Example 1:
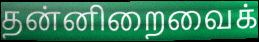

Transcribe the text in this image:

தன்னிறைவைக்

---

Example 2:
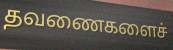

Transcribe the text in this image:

தவணைகளைச்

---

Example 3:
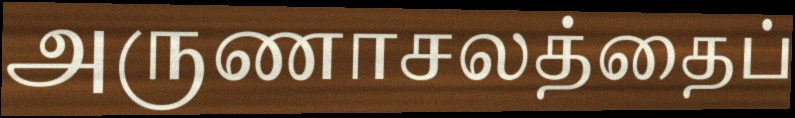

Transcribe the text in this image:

அருணாசலத்தைப்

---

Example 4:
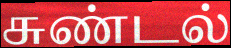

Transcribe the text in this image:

சுண்டல்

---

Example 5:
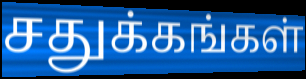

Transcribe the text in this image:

சதுக்கங்கள்